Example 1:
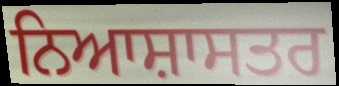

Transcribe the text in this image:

ਨਿਆਸ਼ਾਸਤਰ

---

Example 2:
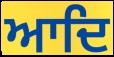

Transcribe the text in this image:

ਆਦਿ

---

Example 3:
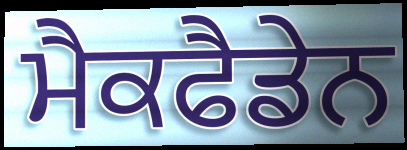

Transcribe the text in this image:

ਮੈਕਫੈਡੇਨ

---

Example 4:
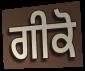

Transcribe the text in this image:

ਗੀਕੋ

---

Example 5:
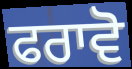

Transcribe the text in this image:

ਫਰਾਵੋ